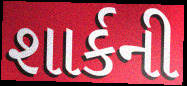
શાર્કની